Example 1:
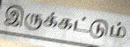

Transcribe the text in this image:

இருக்கட்டும்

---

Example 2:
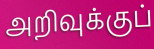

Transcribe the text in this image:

அறிவுக்குப்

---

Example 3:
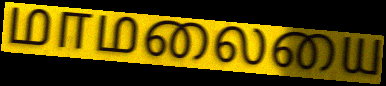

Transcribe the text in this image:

மாமலையை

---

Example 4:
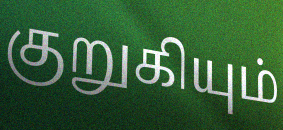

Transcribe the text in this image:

குறுகியும்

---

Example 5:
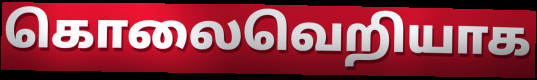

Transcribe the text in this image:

கொலைவெறியாக